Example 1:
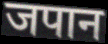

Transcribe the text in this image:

जपान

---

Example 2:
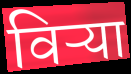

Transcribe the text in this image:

विऱ्या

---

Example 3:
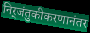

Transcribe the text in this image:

निर्जंतुकीकरणानंतर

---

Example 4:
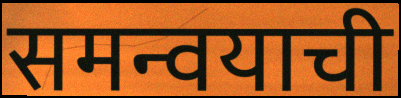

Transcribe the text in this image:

समन्वयाची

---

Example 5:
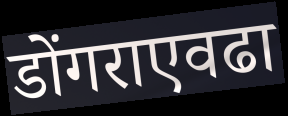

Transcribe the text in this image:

डोंगराएवढा